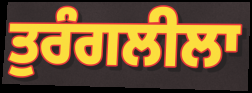
ਤੁਰੰਗਲੀਲਾ